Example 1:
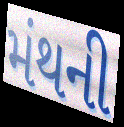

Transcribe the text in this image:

મંથની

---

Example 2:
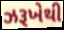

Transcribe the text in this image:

ઝરૂખેથી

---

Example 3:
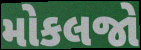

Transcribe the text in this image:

મોકલજો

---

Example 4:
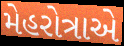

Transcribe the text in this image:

મેહરોત્રાએ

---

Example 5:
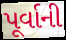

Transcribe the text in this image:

પૂર્વાની